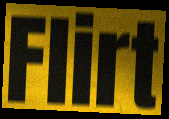
Flirt